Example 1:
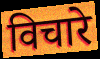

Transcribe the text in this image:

विचारे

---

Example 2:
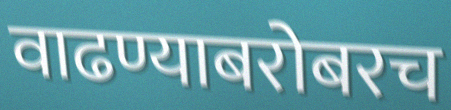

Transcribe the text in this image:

वाढण्याबरोबरच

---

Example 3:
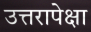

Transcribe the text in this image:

उत्तरापेक्षा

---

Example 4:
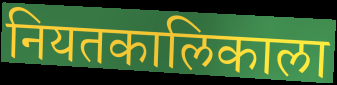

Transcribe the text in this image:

नियतकालिकाला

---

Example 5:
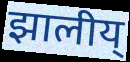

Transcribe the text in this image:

झालीय्